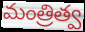
మంత్రిత్వ